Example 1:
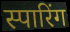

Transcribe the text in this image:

स्पारिंग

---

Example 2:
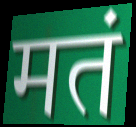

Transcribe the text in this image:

मतं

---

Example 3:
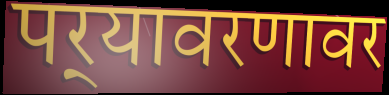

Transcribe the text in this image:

पर्यावरणावर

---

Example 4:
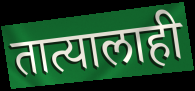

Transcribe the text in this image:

तात्यालाही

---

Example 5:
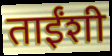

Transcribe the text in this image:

ताईंशी